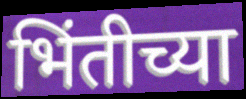
भिंतीच्या